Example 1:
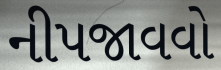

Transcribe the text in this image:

નીપજાવવો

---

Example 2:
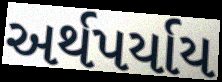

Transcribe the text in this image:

અર્થપર્યાય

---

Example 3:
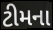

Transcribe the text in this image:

ટીમના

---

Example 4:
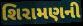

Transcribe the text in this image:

શિરામણની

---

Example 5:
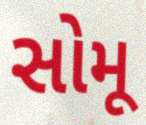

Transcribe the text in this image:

સોમૂ